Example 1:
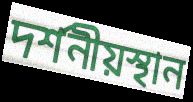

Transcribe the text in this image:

দর্শনীয়স্থান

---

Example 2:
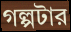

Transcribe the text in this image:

গল্পটার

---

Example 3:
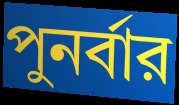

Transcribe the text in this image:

পুনর্বার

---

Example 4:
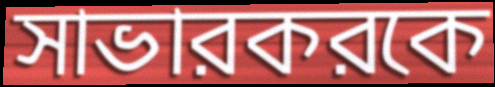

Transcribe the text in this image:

সাভারকরকে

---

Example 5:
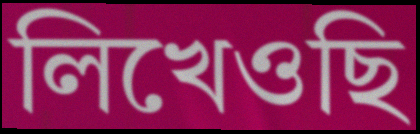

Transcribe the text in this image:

লিখেওছি